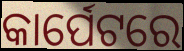
କାର୍ପେଟରେ